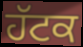
ਹੱਟਕ